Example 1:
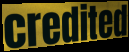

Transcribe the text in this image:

credited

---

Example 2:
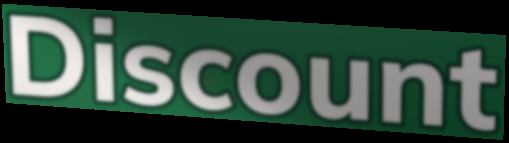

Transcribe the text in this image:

Discount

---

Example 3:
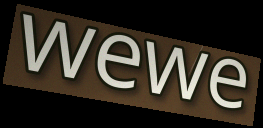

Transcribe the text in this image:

wewe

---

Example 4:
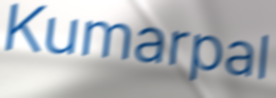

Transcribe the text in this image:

Kumarpal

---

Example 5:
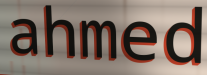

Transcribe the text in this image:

ahmed